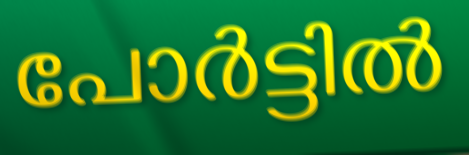
പോർട്ടിൽ